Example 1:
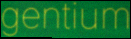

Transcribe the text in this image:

gentium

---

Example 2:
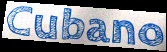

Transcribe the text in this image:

Cubano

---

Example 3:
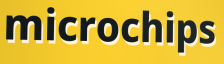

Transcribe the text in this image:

microchips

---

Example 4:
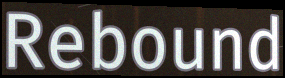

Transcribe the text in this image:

Rebound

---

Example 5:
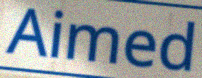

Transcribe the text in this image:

Aimed